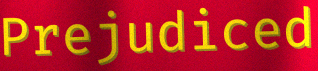
Prejudiced